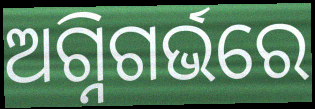
ଅଗ୍ନିଗର୍ଭରେ